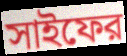
সাইফের